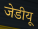
जेडीयू